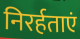
निरर्हताएं